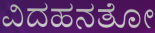
ವಿದಹನತೋ